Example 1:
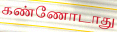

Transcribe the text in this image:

கண்ணோடாது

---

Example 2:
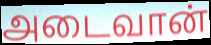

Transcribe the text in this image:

அடைவான்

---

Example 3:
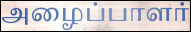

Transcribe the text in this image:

அழைப்பாளர்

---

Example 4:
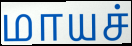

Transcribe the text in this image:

மாயச்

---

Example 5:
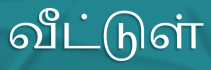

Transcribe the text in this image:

வீட்டுள்